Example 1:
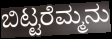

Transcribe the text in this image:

ಬಿಟ್ಟರೆಮ್ಮನು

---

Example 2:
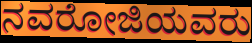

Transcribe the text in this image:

ನವರೋಜಿಯವರು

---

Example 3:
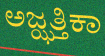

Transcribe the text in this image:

ಅಜ್ಝತ್ತಿಕಾ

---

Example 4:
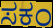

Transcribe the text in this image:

ಸಕಂ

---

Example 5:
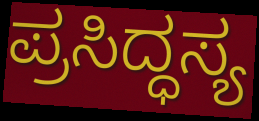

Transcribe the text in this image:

ಪ್ರಸಿದ್ಧಸ್ಯ